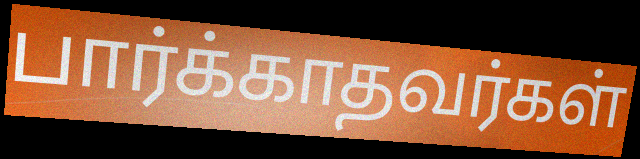
பார்க்காதவர்கள்